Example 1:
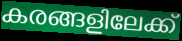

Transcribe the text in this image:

കരങ്ങളിലേക്ക്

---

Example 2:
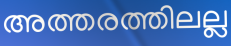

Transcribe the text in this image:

അത്തരത്തിലല്ല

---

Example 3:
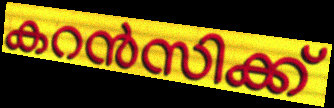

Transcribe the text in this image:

കറൻസിക്ക്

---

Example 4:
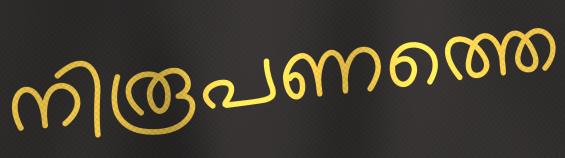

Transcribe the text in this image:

നിരൂപണത്തെ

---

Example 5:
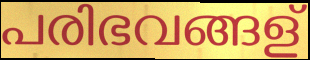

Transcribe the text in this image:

പരിഭവങ്ങള്